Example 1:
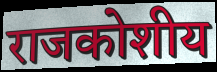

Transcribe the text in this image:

राजकोशीय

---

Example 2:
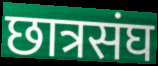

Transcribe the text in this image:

छात्रसंघ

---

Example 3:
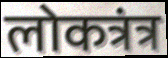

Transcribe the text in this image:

लोकत्रंत्र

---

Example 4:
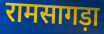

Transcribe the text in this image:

रामसागड़ा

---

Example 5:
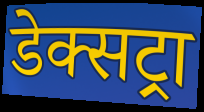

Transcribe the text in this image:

डेक्सट्रा